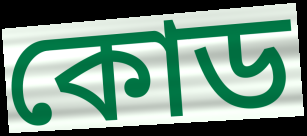
কোড